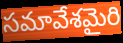
సమావేశమైరి